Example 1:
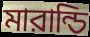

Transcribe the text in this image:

মারান্ডি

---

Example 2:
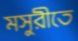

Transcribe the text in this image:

মসুরীতে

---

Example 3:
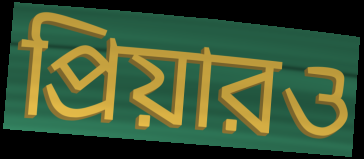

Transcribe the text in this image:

প্রিয়ারও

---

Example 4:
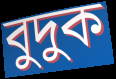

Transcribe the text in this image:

বুদুক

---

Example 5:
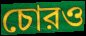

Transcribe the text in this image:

চোরও